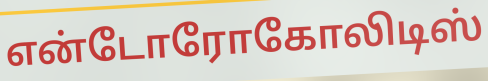
என்டோரோகோலிடிஸ்